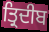
ਤ੍ਰਿਦੀਬ